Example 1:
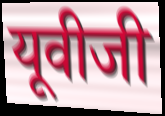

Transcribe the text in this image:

यूवीजी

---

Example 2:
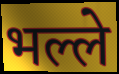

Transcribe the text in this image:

भल्ले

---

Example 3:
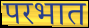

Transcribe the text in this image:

परभात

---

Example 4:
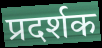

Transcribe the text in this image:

प्रदर्शक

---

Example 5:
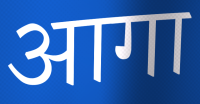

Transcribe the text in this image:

आगा